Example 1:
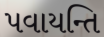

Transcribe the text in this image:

પવાયન્તિ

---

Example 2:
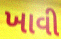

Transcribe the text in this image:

ખાવી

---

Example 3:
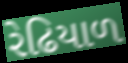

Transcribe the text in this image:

રેઢિયાળ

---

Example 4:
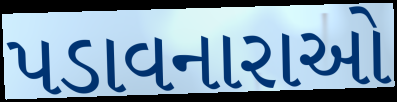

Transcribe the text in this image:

પડાવનારાઓ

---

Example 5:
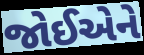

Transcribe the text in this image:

જોઈએને